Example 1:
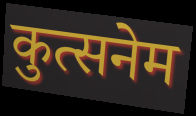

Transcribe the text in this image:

कुत्सनेम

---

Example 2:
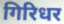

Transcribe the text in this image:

गिरिधर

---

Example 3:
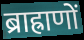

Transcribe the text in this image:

ब्राह्राणों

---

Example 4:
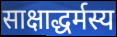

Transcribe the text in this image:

साक्षाद्धर्मस्य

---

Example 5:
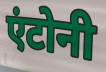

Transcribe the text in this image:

एंटोनी